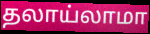
தலாய்லாமா